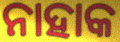
ନାହାକ